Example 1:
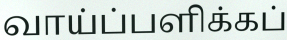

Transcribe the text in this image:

வாய்ப்பளிக்கப்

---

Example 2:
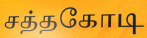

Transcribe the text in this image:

சத்தகோடி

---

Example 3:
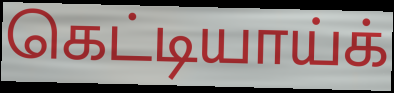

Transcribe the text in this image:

கெட்டியாய்க்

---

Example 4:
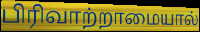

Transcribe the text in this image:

பிரிவாற்றாமையால்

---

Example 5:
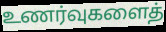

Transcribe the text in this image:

உணர்வுகளைத்